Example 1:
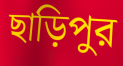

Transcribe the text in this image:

ছাড়িপুর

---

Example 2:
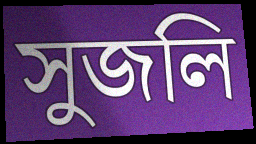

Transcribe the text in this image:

সুজলি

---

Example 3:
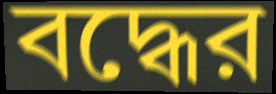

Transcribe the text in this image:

বদ্ধের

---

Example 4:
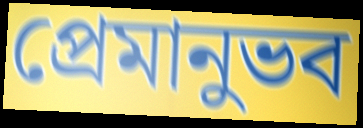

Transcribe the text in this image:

প্রেমানুভব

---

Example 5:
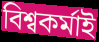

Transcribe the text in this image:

বিশ্বকর্মাই